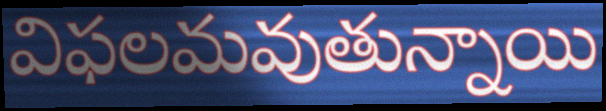
విఫలమవుతున్నాయి